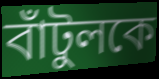
বাঁটুলকে